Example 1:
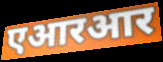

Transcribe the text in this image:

एआरआर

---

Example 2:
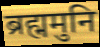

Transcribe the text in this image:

ब्रह्ममुनि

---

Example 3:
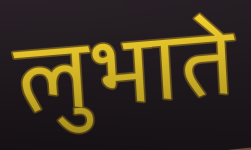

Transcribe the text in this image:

लुभाते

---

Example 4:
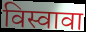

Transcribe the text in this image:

विस्वावा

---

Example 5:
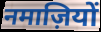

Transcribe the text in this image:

नमाज़ियों